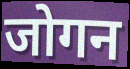
जोगन